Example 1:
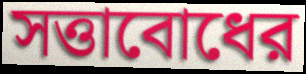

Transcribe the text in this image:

সত্তাবোধের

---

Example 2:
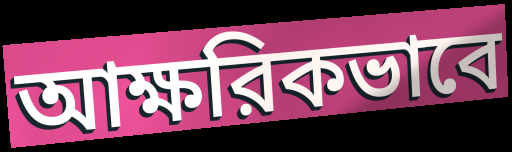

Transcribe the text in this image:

আক্ষরিকভাবে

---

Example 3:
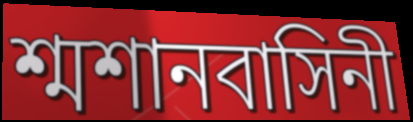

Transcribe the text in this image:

শ্মশানবাসিনী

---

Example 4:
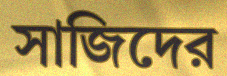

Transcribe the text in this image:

সাজিদের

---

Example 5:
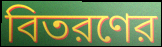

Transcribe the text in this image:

বিতরণের